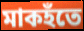
মাকহঁতে